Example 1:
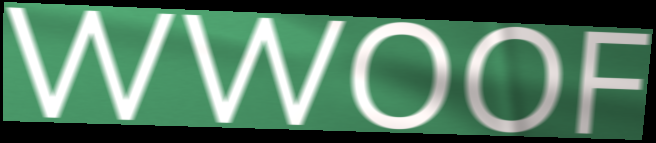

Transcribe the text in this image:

WWOOF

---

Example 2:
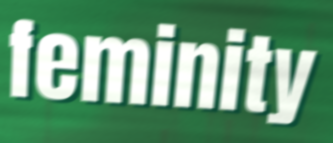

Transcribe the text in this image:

feminity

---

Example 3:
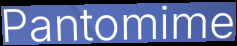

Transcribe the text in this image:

Pantomime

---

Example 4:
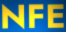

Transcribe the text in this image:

NFE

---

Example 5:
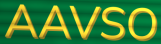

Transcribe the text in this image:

AAVSO